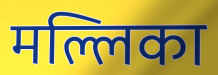
मल्लिका